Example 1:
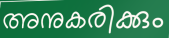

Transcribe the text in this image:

അനുകരിക്കും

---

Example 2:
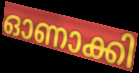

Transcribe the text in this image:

ഓണാക്കി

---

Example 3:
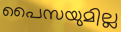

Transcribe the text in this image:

പൈസയുമില്ല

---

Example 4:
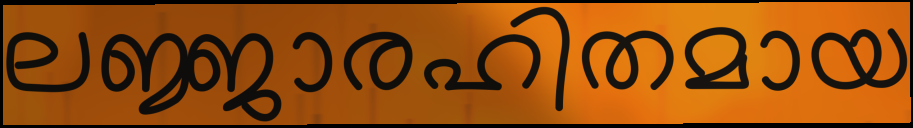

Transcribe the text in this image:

ലജ്ജാരഹിതമായ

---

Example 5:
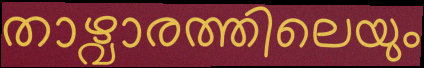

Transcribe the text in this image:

താഴ്വാരത്തിലെയും